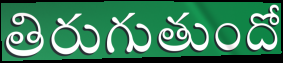
తిరుగుతుందో